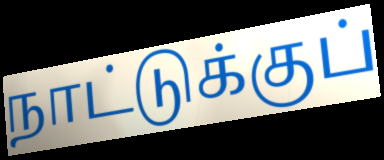
நாட்டுக்குப்